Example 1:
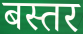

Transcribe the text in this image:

बस्तर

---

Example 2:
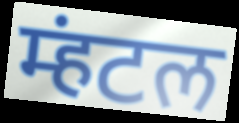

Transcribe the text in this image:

म्हंटल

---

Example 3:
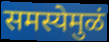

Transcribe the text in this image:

समस्येमुळं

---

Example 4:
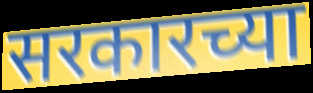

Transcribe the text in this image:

सरकारच्या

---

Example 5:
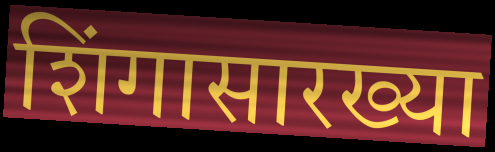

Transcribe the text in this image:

शिंगासारख्या